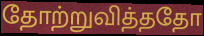
தோற்றுவித்ததோ